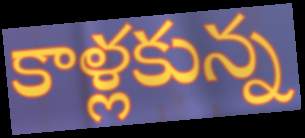
కాళ్లకున్న